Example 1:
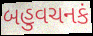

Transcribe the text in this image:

બહુવચનકં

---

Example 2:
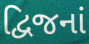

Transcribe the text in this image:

દ્વિજનાં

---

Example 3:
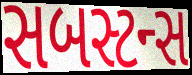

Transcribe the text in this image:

સબસ્ટન્સ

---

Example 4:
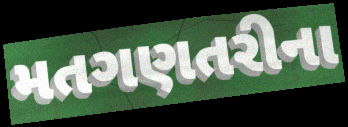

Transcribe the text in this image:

મતગણતરીના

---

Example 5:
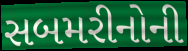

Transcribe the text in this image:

સબમરીનોની